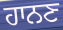
ਹਾਨਣ